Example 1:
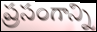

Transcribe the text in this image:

ప్రసంగాన్ని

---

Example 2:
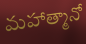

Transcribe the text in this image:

మహాత్మానో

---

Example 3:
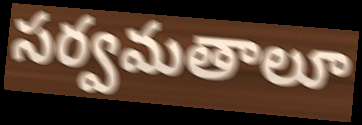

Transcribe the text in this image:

సర్వమతాలూ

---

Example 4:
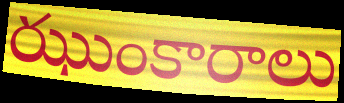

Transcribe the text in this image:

ఝుంకారాలు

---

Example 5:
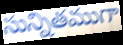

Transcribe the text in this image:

సున్నితముగా